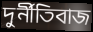
দুর্নীতিবাজ